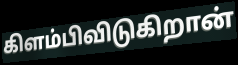
கிளம்பிவிடுகிறான்